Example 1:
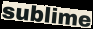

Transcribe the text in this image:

sublime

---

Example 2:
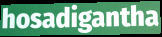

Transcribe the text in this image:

hosadigantha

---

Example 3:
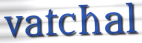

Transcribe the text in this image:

vatchal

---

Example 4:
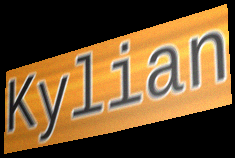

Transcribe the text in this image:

Kylian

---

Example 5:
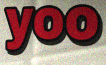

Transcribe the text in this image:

yoo